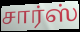
சார்ஸ்